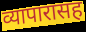
व्यापारासह